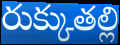
రుక్కుతల్లి